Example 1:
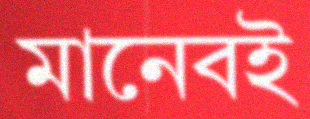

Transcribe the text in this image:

মানেবই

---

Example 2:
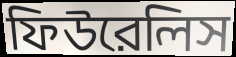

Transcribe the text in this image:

ফিউরেলিস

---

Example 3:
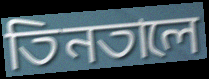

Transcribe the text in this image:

তিনতালে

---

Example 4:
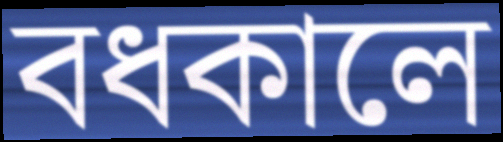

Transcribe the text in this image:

বধকালে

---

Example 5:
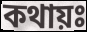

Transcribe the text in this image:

কথায়ঃ